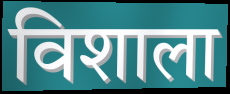
विशाला